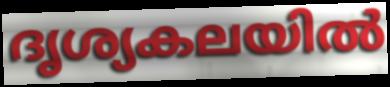
ദൃശ്യകലയിൽ